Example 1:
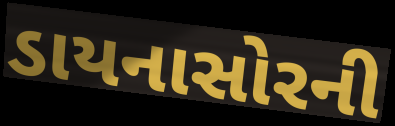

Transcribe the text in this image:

ડાયનાસોરની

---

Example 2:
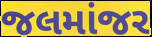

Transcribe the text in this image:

જલમાંજર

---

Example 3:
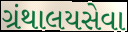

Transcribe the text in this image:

ગ્રંથાલયસેવા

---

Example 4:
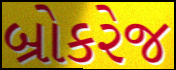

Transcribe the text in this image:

બ્રોકરેજ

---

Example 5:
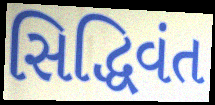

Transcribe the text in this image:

સિદ્ધિવંત